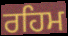
ਰਹਿਮ